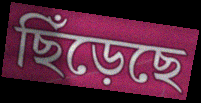
ছিঁড়েছে